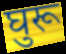
घुरू